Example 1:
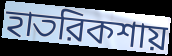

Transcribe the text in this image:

হাতরিকশায়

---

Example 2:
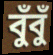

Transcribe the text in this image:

বুঁবুঁ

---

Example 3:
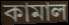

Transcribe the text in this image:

কামাল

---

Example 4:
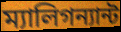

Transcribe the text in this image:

ম্যালিগন্যান্ট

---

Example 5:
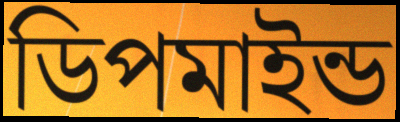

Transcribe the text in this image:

ডিপমাইন্ড